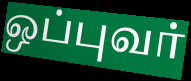
ஒப்புவர்